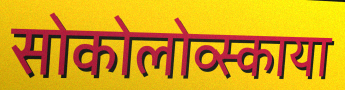
सोकोलोव्स्काया